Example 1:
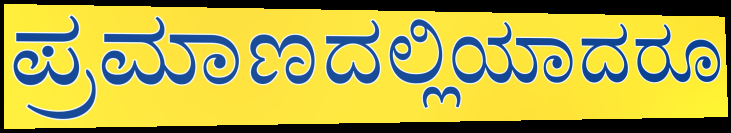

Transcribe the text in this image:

ಪ್ರಮಾಣದಲ್ಲಿಯಾದರೂ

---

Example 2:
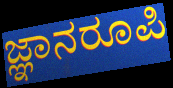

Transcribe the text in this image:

ಜ್ಞಾನರೂಪಿ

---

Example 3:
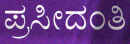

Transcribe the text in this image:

ಪ್ರಸೀದಂತಿ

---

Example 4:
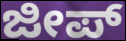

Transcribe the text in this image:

ಜೀಪ್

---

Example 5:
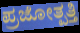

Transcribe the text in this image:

ಪ್ರಜೋತ್ಪತ್ತಿ